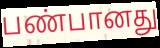
பண்பானது